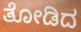
ತೋಡಿದ